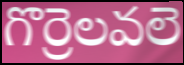
గొర్రెలవలె